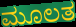
ಮೂಲತ